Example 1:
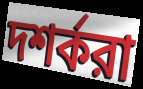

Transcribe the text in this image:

দশর্করা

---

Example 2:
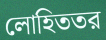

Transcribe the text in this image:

লোহিততর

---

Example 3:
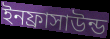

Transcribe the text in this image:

ইনফ্রাসাউন্ড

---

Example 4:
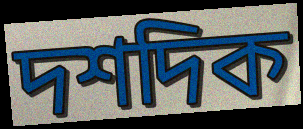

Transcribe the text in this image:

দশদিক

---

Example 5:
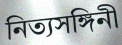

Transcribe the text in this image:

নিত্যসঙ্গিনী